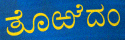
ತೊಱೆದಂ